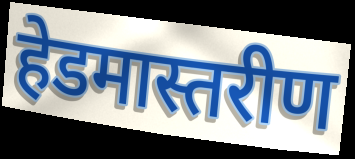
हेडमास्तरीण